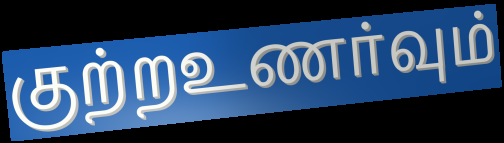
குற்றஉணர்வும்